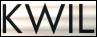
KWIL